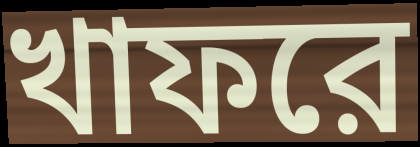
খাফরে